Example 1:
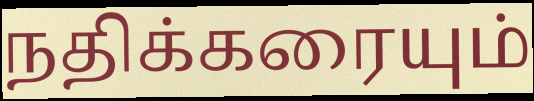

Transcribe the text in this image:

நதிக்கரையும்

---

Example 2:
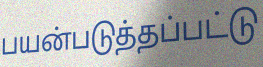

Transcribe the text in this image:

பயன்படுத்தப்பட்டு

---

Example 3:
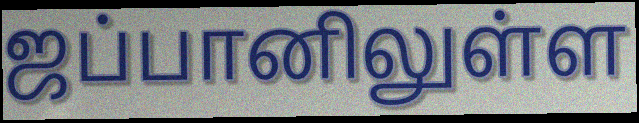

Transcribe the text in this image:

ஜப்பானிலுள்ள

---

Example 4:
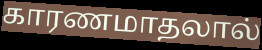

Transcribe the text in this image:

காரணமாதலால்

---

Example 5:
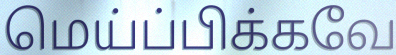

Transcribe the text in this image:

மெய்ப்பிக்கவே